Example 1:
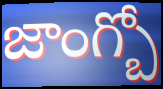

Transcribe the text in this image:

జాంగ్బో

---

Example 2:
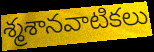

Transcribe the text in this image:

శ్మశానవాటికలు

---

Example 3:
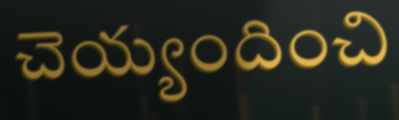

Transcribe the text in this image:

చెయ్యందించి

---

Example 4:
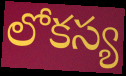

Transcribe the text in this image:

లోకస్య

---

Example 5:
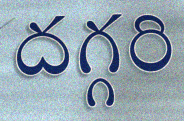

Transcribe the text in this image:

దగ్గరి